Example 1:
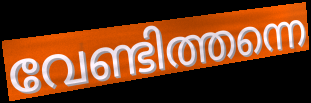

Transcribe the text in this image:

വേണ്ടിത്തന്നെ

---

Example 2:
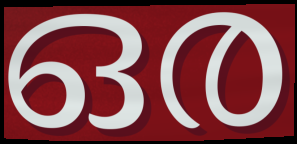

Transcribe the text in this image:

ഒര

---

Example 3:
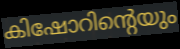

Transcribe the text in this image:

കിഷോറിന്റെയും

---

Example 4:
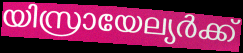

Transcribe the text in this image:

യിസ്രായേല്യർക്ക്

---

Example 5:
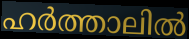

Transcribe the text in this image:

ഹർത്താലിൽ